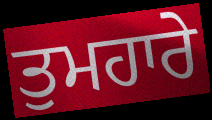
ਤੁਮਹਾਰੇ